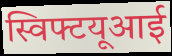
स्विफ्टयूआई